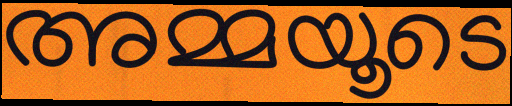
അമ്മയൂടെ